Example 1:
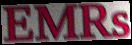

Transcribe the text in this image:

EMRs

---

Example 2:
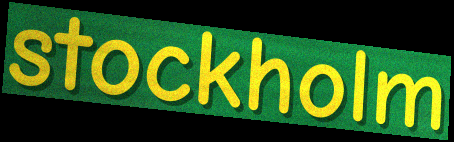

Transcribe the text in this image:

stockholm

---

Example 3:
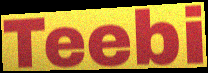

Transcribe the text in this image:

Teebi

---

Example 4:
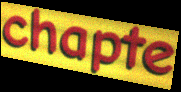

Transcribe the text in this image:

chapte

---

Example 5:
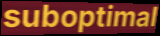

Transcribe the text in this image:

suboptimal